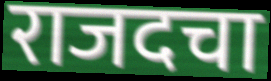
राजदचा